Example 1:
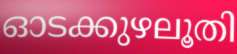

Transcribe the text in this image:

ഓടക്കുഴലൂതി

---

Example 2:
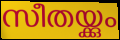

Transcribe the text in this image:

സീതയ്ക്കും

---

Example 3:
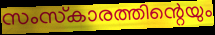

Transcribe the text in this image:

സംസ്‌കാരത്തിന്റെയും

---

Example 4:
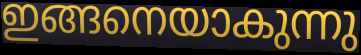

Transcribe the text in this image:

ഇങ്ങനെയാകുന്നു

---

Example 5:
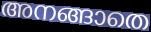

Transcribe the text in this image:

അനങ്ങാതെ